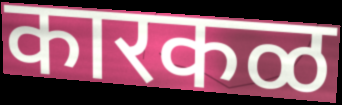
कारकळ